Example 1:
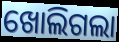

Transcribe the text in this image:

ଖୋଲିଗଲା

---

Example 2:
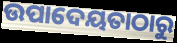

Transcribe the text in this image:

ଉପାଦେୟତାଠାରୁ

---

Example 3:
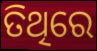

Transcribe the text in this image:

ତିଥିରେ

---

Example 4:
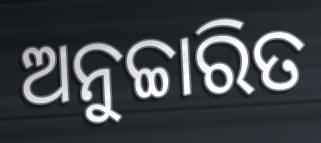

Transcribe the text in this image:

ଅନୁଚ୍ଚାରିତ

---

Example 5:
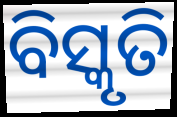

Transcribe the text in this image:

ବିସ୍କୃତି